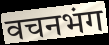
वचनभंग